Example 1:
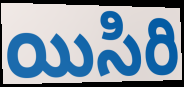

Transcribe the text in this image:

యిసిరి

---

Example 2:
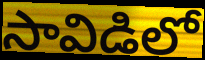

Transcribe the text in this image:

సావిడిలో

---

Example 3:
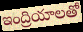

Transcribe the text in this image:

ఇంద్రియాలతో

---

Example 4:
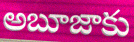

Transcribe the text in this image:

అబూజాకు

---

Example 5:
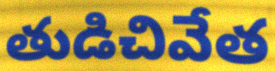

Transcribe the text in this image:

తుడిచివేత